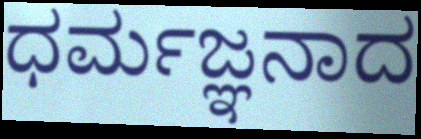
ಧರ್ಮಜ್ಞನಾದ